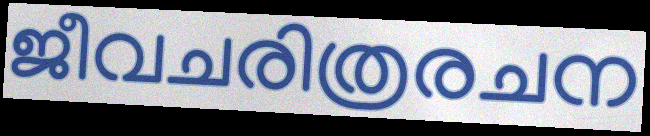
ജീവചരിത്രരചന